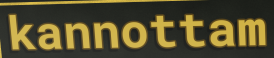
kannottam